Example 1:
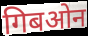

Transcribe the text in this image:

गिबओन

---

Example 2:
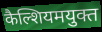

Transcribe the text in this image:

कैल्शियमयुक्त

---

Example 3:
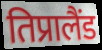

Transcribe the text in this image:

तिप्रालैंड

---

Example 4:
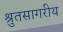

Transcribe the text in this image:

श्रुतसागरीय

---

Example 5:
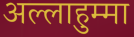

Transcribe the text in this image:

अल्लाहुम्मा